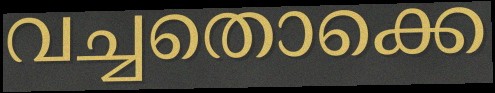
വച്ചതൊക്കെ